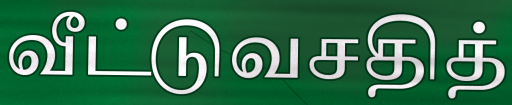
வீட்டுவசதித்